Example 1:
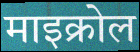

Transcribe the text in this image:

माइक्रोल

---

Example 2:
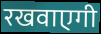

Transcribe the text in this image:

रखवाएगी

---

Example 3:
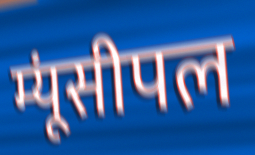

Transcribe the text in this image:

म्यूंसीपल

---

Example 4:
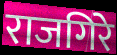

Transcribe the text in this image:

राजगिरे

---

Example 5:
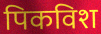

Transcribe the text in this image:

पिकविश